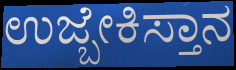
ಉಜ್ಬೇಕಿಸ್ತಾನ